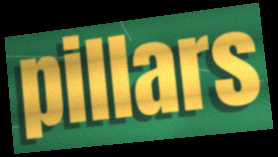
pillars